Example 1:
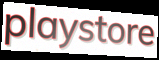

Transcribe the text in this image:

playstore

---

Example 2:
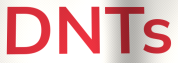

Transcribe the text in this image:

DNTs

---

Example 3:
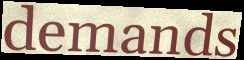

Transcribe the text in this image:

demands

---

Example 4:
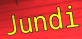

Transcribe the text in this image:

Jundi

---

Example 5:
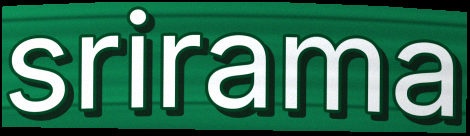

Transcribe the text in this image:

srirama